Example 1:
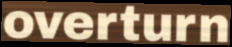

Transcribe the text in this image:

overturn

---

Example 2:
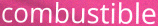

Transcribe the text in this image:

combustible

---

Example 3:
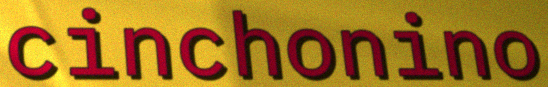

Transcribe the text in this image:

cinchonino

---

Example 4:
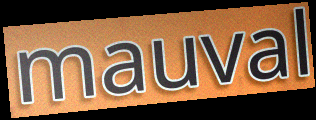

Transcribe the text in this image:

mauval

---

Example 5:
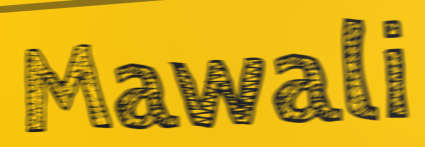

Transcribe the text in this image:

Mawali